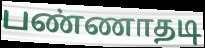
பண்ணாதடி